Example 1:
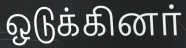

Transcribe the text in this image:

ஒடுக்கினர்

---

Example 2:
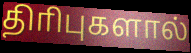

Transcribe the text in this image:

திரிபுகளால்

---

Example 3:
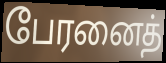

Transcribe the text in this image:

பேரனைத்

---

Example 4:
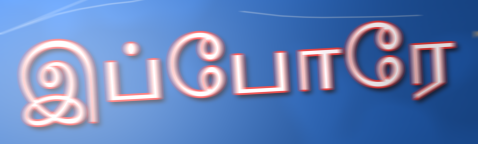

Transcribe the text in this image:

இப்போரே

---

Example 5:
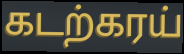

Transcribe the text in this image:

கடற்கரய்